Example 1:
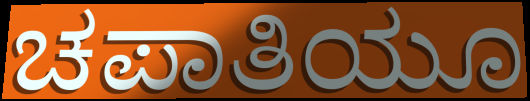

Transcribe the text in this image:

ಚಪಾತಿಯೂ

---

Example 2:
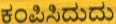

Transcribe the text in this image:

ಕಂಪಿಸಿದುದು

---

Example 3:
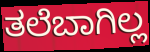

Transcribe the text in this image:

ತಲೆಬಾಗಿಲ್ಲ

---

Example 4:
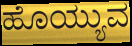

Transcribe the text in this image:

ಹೊಯ್ಯುವ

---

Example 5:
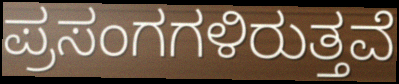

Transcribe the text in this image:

ಪ್ರಸಂಗಗಳಿರುತ್ತವೆ